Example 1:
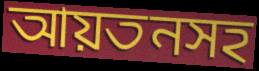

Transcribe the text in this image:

আয়তনসহ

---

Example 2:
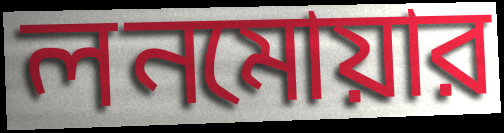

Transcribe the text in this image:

লনমোয়ার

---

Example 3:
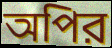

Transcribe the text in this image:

অপির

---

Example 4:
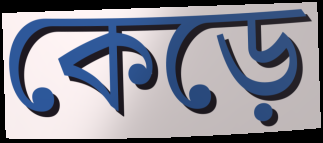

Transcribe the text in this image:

কেড়ে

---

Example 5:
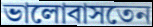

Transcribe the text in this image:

ভালোবাসতেন